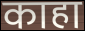
काहा